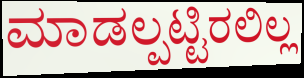
ಮಾಡಲ್ಪಟ್ಟಿರಲಿಲ್ಲ